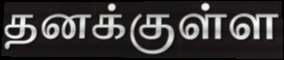
தனக்குள்ள